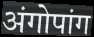
अंगोपांग